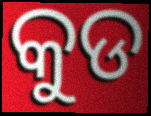
କୁଡ